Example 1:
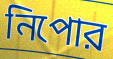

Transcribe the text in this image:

নিপোর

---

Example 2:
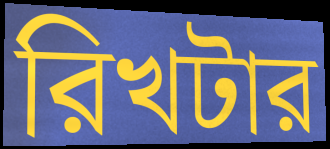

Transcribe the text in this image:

রিখটার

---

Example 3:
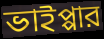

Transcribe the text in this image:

ভাইপ্পার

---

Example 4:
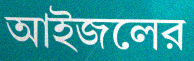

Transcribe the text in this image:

আইজলের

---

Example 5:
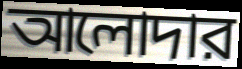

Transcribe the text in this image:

আলোদার